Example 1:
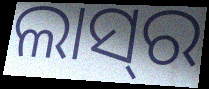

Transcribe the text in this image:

ଲାସ୍‌ର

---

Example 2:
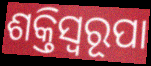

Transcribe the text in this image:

ଶକ୍ତିସ୍ବରୂପା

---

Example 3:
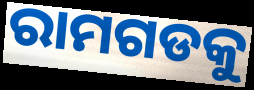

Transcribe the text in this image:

ରାମଗଡକୁ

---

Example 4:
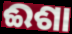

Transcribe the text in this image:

ଈଶା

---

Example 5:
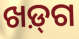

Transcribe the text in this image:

ଖଡ଼୍‌ଗ